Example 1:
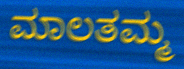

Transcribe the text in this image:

ಮಾಲತಮ್ಮ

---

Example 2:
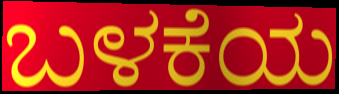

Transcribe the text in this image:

ಬಳಕೆಯ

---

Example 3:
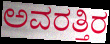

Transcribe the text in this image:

ಅವರತ್ತಿರ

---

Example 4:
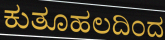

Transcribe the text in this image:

ಕುತೂಹಲದಿಂದ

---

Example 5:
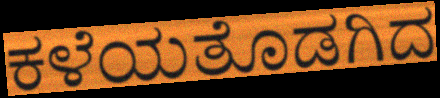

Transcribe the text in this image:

ಕಳೆಯತೊಡಗಿದ